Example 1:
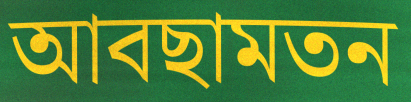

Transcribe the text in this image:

আবছামতন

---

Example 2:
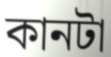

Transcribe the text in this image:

কানটা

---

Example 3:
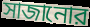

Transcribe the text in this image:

সাজানোর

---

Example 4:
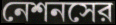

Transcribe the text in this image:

নেশনসের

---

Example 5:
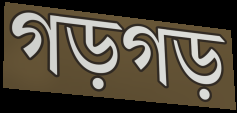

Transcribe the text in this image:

গড়গড়